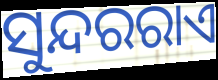
ସୁନ୍ଦରରାଏ